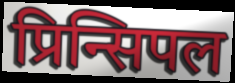
प्रिन्सिपल